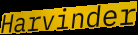
Harvinder